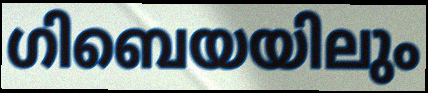
ഗിബെയയിലും